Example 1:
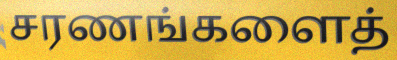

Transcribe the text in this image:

சரணங்களைத்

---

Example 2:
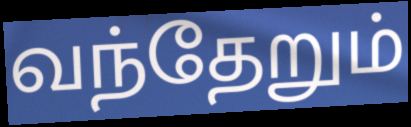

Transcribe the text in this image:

வந்தேறும்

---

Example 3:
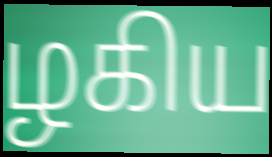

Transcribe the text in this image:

ழகிய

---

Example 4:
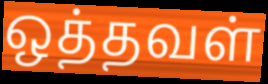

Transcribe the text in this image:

ஒத்தவள்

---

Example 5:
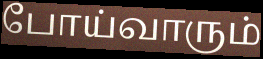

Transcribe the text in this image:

போய்வாரும்